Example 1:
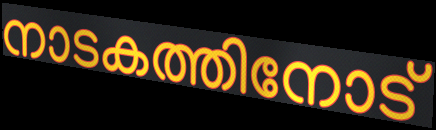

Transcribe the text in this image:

നാടകത്തിനോട്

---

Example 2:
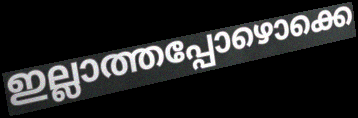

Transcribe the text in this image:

ഇല്ലാത്തപ്പോഴൊക്കെ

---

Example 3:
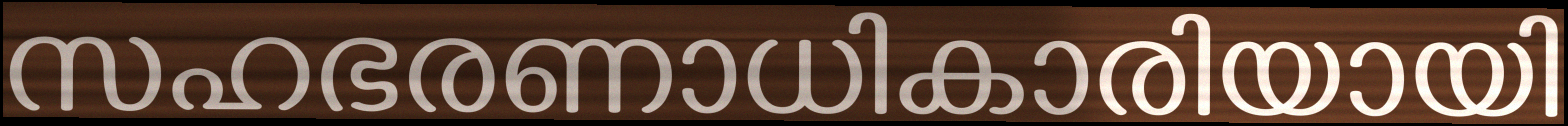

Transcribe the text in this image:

സഹഭരണാധികാരിയായി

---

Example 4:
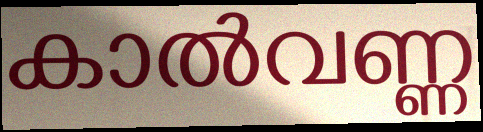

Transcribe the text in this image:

കാൽവണ്ണ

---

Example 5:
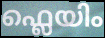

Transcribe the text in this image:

ഫ്ലെയിം